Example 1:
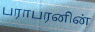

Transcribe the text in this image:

பராபரனின்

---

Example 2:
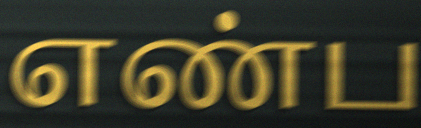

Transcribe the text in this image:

எண்ப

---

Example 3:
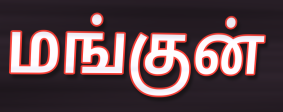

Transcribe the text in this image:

மங்குன்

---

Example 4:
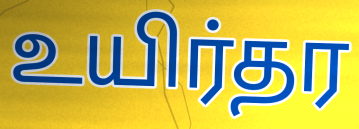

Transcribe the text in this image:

உயிர்தர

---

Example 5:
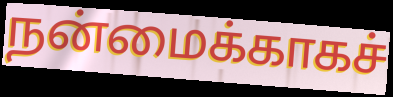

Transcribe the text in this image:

நன்மைக்காகச்